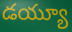
డయ్యూ